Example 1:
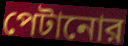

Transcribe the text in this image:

পেটানোর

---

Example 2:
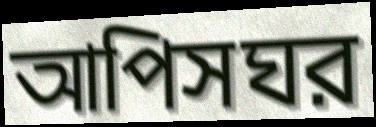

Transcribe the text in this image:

আপিসঘর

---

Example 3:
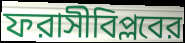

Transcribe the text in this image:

ফরাসীবিপ্লবের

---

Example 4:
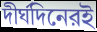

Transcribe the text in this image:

দীর্ঘদিনেরই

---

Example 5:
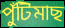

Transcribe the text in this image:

পুঁটিমাছ